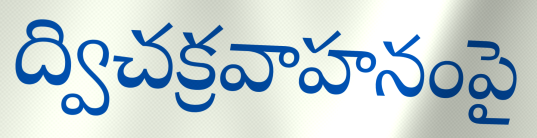
ద్విచక్రవాహనంపై